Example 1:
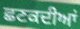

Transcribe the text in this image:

ਛਣਕਦੀਆਂ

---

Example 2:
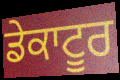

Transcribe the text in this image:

ਡੇਕਾਟੂਰ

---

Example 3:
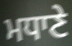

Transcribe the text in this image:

ਮਧਾਣੇ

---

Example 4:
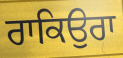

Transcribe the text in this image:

ਰਾਕਿਉਰਾ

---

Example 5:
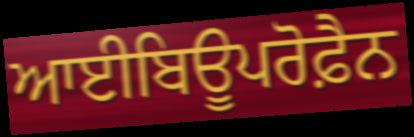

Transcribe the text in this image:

ਆਈਬਿਊਪਰੋਫ਼ੈਨ